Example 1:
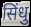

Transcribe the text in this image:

सिंधु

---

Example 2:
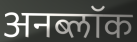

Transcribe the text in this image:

अनब्लॉक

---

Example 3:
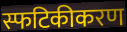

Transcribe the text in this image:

स्फटिकीकरण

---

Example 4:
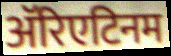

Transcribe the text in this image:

ॲरिएटिनम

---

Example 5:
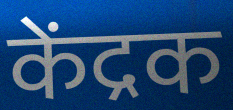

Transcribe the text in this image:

केंद्रक